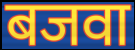
बजवा